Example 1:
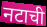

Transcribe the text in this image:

नटाची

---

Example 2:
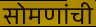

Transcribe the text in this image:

सोमणांची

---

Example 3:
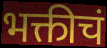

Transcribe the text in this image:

भक्तीचं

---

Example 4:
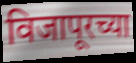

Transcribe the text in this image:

विजापूरच्या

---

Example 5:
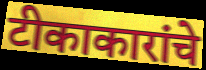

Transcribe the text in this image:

टीकाकारांचे